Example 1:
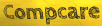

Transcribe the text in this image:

Compcare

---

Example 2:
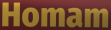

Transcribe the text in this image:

Homam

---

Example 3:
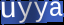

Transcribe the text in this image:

uyya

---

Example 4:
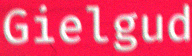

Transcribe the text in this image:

Gielgud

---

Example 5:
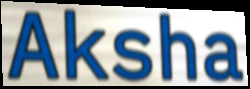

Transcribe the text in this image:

Aksha